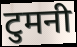
टुमनी